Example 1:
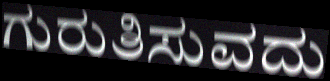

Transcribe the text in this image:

ಗುರುತಿಸುವದು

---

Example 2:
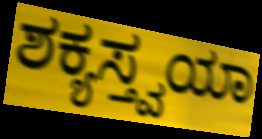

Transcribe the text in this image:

ಶಕ್ಯಸ್ತ್ವಯಾ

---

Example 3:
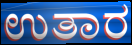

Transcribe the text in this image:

ಉತಾರ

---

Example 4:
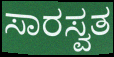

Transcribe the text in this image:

ಸಾರಸ್ವತ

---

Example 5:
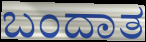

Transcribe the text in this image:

ಬಂದಾತ